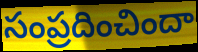
సంప్రదించిందా